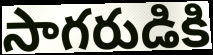
సాగరుడికి